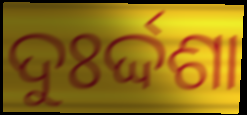
ଦୁଃର୍ଦ୍ଦଶା